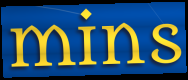
mins